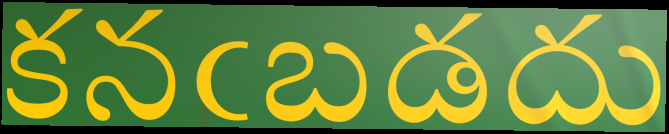
కనఁబడదు